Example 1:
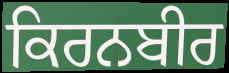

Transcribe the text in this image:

ਕਿਰਨਬੀਰ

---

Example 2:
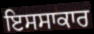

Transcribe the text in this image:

ਇਸਸਾਕਾਰ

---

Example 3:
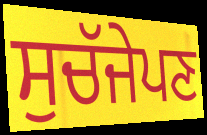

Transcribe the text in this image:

ਸੁਚੱਜੇਪਣ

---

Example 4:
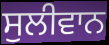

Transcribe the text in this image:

ਸੁਲੀਵਾਨ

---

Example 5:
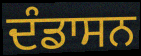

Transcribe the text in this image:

ਦੰਡਾਸਨ